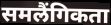
समलैंगिकता